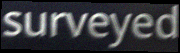
surveyed